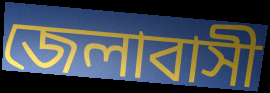
জেলাবাসী